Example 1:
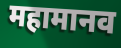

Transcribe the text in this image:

महामानव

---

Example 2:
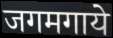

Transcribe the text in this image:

जगमगाये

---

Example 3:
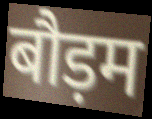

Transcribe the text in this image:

बौड़म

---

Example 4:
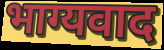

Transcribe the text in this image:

भाग्यवाद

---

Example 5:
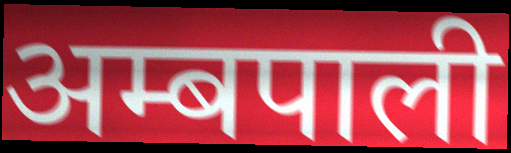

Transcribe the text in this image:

अम्बपाली